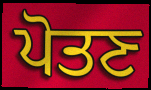
ਪੋਤਣ